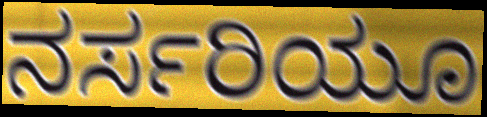
ನರ್ಸರಿಯೂ